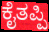
ಕೈತಪ್ಪಿ